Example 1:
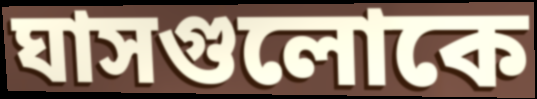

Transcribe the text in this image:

ঘাসগুলোকে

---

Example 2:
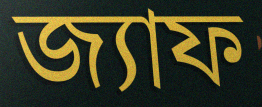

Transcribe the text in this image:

জ্যাফ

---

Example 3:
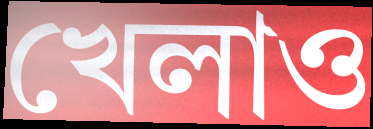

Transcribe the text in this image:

খেলাও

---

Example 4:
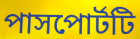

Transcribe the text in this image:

পাসপোর্টটি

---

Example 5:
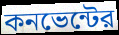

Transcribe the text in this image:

কনভেন্টের